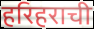
हरिहराची